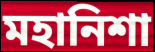
মহানিশা